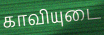
காவியுடை